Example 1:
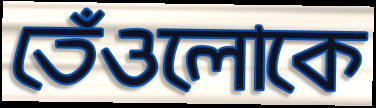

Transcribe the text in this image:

তেঁওলোকে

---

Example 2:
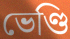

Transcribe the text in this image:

ভেণ্ডি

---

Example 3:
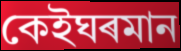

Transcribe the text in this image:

কেইঘৰমান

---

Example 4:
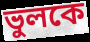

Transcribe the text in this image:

ভুলকে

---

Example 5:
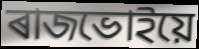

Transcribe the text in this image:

ৰাজভোইয়ে